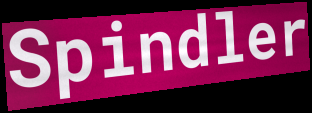
Spindler